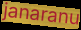
janaranu